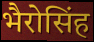
भैरोसिंह